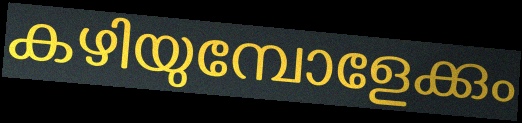
കഴിയുമ്പോളേക്കും